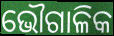
ଭୌଗାଳିକ